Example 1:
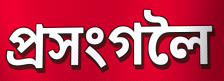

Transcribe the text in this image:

প্ৰসংগলৈ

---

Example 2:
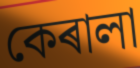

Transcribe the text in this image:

কেৰালা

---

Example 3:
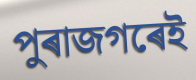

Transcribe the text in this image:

পুৰাজগৰেই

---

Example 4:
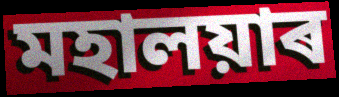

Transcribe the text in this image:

মহালয়াৰ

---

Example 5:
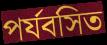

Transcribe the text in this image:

পৰ্যবসিত